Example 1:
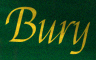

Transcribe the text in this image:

Bury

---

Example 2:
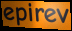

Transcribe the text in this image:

epirev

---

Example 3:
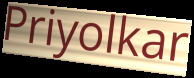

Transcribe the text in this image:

Priyolkar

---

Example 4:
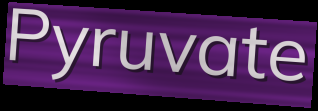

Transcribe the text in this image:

Pyruvate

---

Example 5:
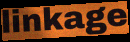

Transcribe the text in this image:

linkage